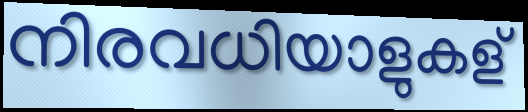
നിരവധിയാളുകള്